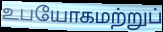
உபயோகமற்றுப்